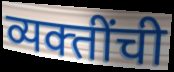
व्यक्‍तींची